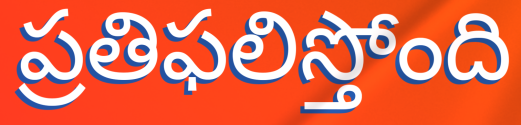
ప్రతిఫలిస్తోంది